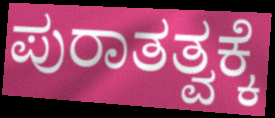
ಪುರಾತತ್ವಕ್ಕೆ